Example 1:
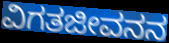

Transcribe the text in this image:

ವಿಗತಜೀವನನ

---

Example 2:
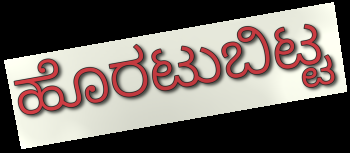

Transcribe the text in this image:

ಹೊರಟುಬಿಟ್ಟ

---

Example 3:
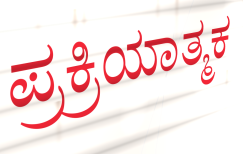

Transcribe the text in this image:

ಪ್ರಕ್ರಿಯಾತ್ಮಕ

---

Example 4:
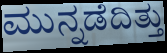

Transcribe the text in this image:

ಮುನ್ನಡೆದಿತ್ತು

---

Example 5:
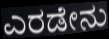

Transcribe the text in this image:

ಎರಡೇನು